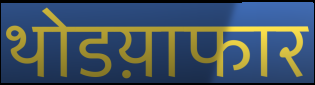
थोडय़ाफार